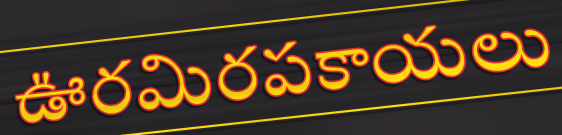
ఊరమిరపకాయలు